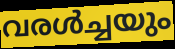
വരൾച്ചയും